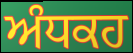
ਅੰਧਕਹ